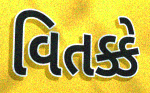
વિતક્કે